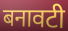
बनावटी